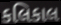
કલિકાલ